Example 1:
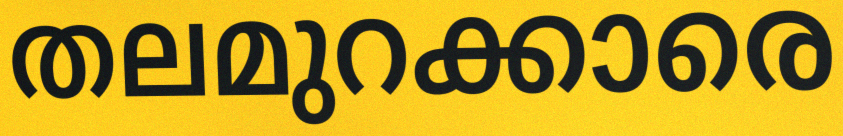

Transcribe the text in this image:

തലമുറക്കാരെ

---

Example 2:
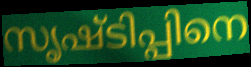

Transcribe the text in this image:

സൃഷ്ടിപ്പിനെ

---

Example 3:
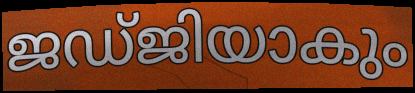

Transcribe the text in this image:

ജഡ്ജിയാകും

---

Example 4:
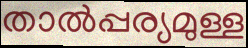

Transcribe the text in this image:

താൽപ്പര്യമുള്ള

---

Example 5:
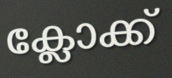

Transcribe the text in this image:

ക്ലോക്ക്